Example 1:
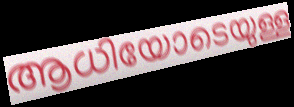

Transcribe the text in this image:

ആധിയോടെയുള്ള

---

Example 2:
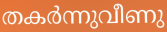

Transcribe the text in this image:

തകർന്നുവീണു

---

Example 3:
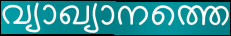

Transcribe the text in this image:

വ്യാഖ്യാനത്തെ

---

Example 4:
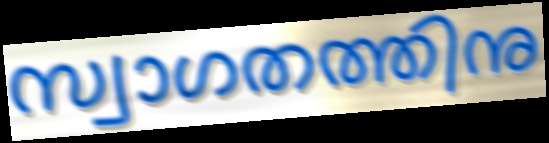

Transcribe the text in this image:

സ്വാഗതത്തിനു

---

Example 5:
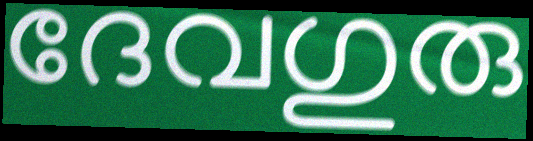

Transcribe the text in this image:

ദേവഗുരു